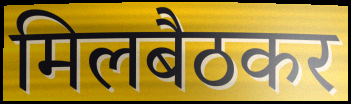
मिलबैठकर